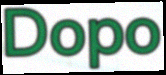
Dopo